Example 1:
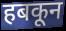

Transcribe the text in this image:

हबकून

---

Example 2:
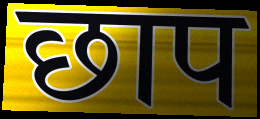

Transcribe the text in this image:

छाप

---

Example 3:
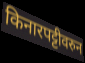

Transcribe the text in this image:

किनारपट्टीवरुन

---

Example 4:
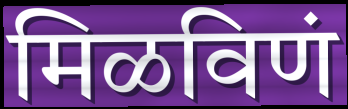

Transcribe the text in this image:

मिळविणं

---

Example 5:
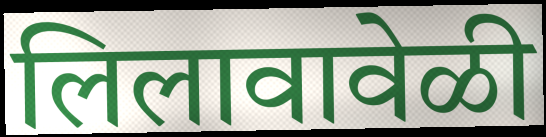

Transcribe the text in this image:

लिलावावेळी